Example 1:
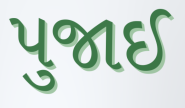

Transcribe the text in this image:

પુજાઈ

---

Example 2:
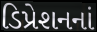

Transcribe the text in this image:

ડિપ્રેશનનાં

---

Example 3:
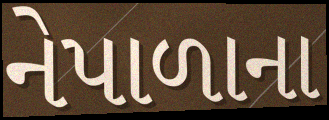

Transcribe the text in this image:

નેપાળાના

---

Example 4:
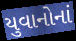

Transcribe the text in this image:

યુવાનોનાં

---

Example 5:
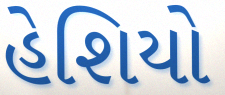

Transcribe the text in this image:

હેશિયો